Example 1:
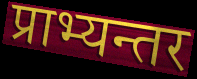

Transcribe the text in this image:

प्राभ्यन्तर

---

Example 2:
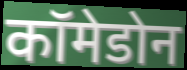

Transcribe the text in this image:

कॉमेडोन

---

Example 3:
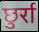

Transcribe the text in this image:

छुर्रा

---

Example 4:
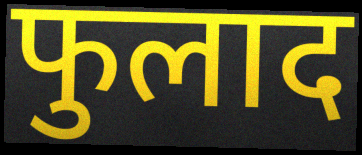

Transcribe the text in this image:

फुलाद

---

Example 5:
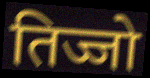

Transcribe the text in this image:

तिज्जो